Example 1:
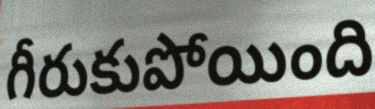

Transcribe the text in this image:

గీరుకుపోయింది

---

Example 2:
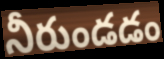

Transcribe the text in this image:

నీరుండడం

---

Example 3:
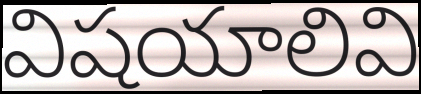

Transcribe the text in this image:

విషయాలివి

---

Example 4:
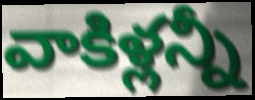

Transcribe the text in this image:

వాకిళ్లన్నీ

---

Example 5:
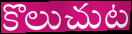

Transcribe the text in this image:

కొలుచుట